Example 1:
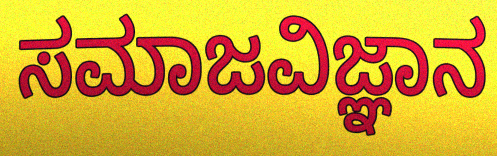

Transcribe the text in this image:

ಸಮಾಜವಿಜ್ಞಾನ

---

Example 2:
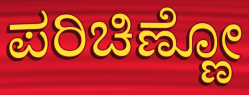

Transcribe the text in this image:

ಪರಿಚಿಣ್ಣೋ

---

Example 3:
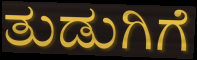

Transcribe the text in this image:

ತುಡುಗಿಗೆ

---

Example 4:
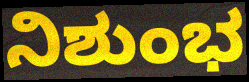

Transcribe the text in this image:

ನಿಶುಂಭ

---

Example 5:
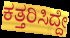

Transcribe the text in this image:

ಕತ್ತರಿಸಿದ್ದೇ